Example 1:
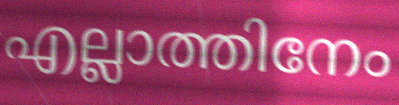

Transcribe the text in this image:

എല്ലാത്തിനേം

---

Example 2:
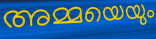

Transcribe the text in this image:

അമ്മയെയും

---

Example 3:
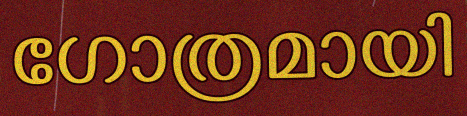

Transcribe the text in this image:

ഗോത്രമായി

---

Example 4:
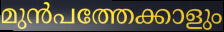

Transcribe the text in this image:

മുൻപത്തേക്കാളും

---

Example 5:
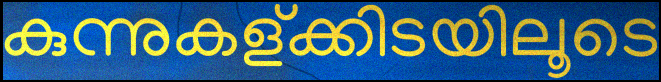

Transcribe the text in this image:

കുന്നുകള്ക്കിടയിലൂടെ